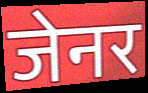
जेनर